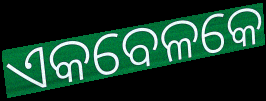
ଏକବେଳକେ